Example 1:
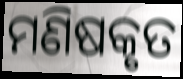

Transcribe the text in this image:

ମଣିଷକୃତ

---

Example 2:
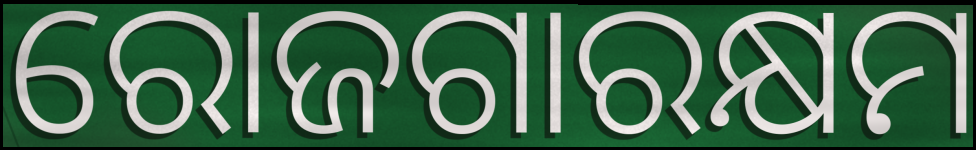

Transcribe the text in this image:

ରୋଜଗାରକ୍ଷମ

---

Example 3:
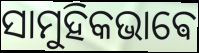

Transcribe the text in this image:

ସାମୁହିକଭାଵେ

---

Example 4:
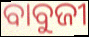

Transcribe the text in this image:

ବାବୁଜୀ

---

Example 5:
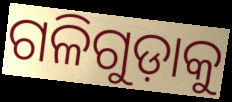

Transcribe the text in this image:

ଗଳିଗୁଡ଼ାକୁ